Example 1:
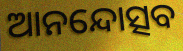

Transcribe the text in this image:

ଆନନ୍ଦୋତ୍ସବ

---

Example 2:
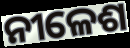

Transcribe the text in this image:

ନୀଳେଶ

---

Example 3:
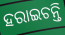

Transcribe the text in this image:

ହରାଇଚନ୍ତି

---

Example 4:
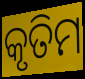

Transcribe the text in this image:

କୃତିମ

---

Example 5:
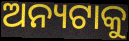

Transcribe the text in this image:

ଅନ୍ୟଟାକୁ